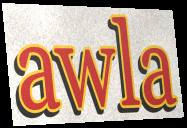
awla